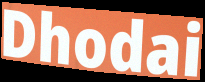
Dhodai